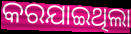
କରଯାଇଥିଲା